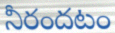
నీరందటం